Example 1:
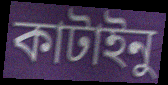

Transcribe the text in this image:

কাটাইনু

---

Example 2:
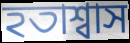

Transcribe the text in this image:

হতাশ্বাস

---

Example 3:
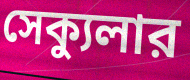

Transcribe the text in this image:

সেক্যুলার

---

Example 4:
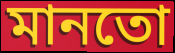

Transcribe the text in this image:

মানতো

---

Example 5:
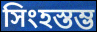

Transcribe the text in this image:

সিংহস্তম্ভ